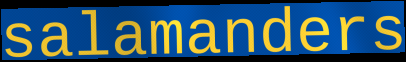
salamanders